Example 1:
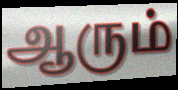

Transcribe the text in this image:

ஆரும்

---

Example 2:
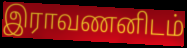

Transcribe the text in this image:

இராவணனிடம்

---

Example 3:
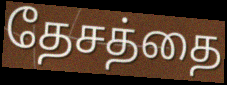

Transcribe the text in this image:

தேசத்தை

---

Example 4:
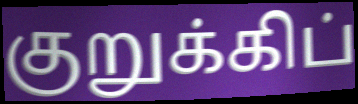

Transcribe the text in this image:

குறுக்கிப்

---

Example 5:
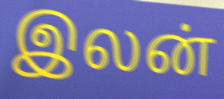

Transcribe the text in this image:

இலன்